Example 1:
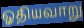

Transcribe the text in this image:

ஓதியவாறு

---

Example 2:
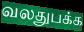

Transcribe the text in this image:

வலதுபக்க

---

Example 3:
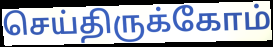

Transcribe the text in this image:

செய்திருக்கோம்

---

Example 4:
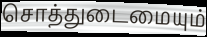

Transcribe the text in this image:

சொத்துடைமையும்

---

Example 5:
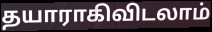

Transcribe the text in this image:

தயாராகிவிடலாம்